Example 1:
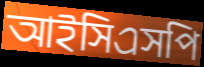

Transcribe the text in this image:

আইসিএসপি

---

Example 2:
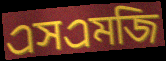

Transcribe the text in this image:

এসএমজি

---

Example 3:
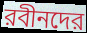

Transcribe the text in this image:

রবীনদের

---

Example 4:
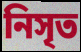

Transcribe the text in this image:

নিসৃত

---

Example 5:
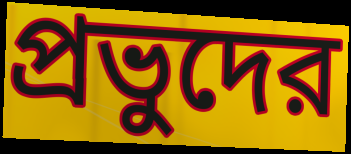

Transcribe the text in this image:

প্রভুদের